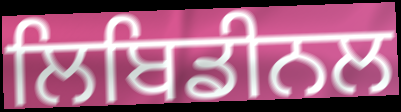
ਲਿਬਿਡੀਨਲ